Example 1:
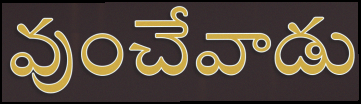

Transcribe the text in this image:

వుంచేవాడు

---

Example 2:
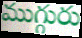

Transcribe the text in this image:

ముగ్గురు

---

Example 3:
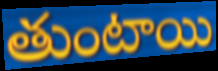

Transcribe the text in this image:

తుంటాయి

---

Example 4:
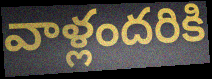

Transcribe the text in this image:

వాళ్లందరికి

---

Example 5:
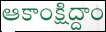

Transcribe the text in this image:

ఆకాంక్షిద్దాం